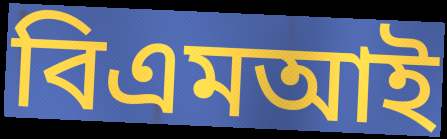
বিএমআই